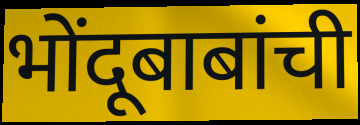
भोंदूबाबांची